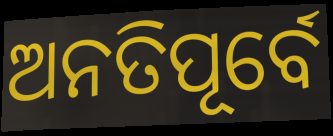
ଅନତିପୂର୍ବେ